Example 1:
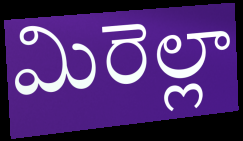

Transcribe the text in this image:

మిరెల్లా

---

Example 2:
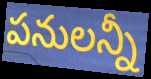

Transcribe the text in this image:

పనులన్నీ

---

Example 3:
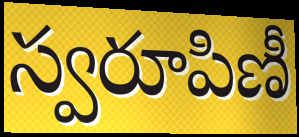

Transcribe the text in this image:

స్వరూపిణీ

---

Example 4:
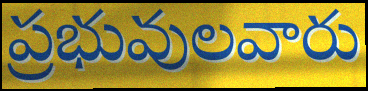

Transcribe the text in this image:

ప్రభువులవారు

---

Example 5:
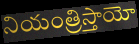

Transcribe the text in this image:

నియంత్రిస్తాయో